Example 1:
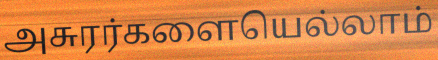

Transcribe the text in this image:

அசுரர்களையெல்லாம்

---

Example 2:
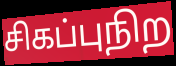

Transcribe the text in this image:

சிகப்புநிற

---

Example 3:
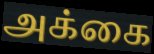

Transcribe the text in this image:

அக்கை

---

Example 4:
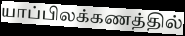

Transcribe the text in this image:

யாப்பிலக்கணத்தில்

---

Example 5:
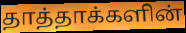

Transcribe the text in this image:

தாத்தாக்களின்